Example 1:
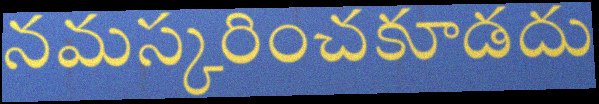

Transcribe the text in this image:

నమస్కరించకూడదు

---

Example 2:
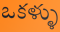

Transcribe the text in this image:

ఒకళ్ళు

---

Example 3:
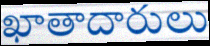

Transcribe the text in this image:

ఖాతాదారులు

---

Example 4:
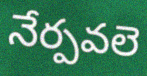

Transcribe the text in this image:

నేర్పవలె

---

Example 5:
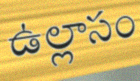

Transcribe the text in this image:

ఉల్లాసం